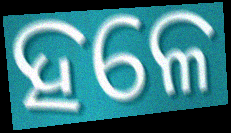
ହଳେ